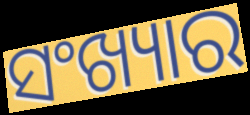
ସଂଖ୍ୟାର